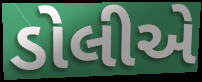
ડોલીએ